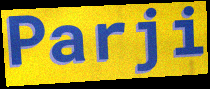
Parji